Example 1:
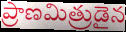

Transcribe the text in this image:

ప్రాణమిత్రుడైన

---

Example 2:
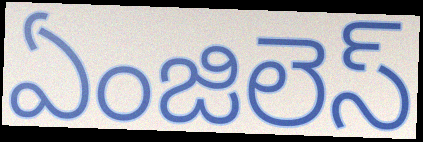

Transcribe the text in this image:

ఏంజిలెస్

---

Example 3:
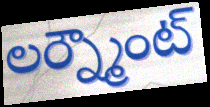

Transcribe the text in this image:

లర్న్మౌంట్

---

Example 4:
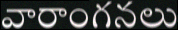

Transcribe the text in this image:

వారాంగనలు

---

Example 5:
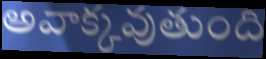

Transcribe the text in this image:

అవాక్కవుతుంది